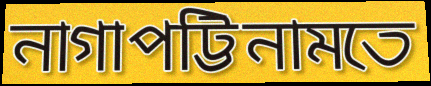
নাগাপট্টিনামতে